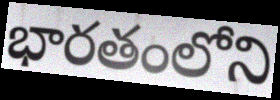
భారతంలోని